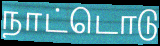
நாட்டொடு